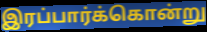
இரப்பார்க்கொன்று